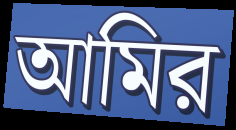
আমির